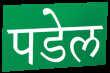
पडेल